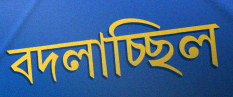
বদলাচ্ছিল